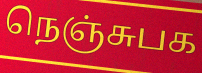
நெஞ்சுபக